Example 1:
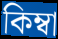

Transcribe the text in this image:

কিম্বা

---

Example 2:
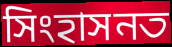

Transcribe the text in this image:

সিংহাসনত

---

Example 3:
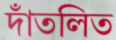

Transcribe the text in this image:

দাঁতলিত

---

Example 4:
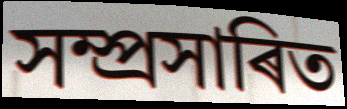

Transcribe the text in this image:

সম্প্ৰসাৰিত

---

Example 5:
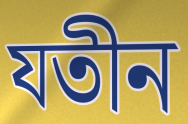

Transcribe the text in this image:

যতীন